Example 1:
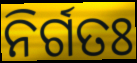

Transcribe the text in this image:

ନିର୍ଗତଃ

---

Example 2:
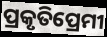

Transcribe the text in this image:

ପ୍ରକୃତିପ୍ରେମୀ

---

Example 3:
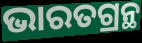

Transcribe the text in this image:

ଭାରତଗ୍ରନ୍ଥ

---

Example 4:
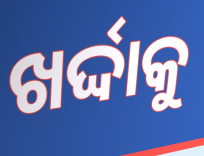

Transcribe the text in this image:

ଖର୍ଦ୍ଦାକୁ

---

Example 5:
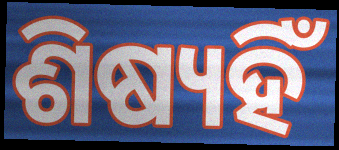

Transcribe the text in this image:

ଶିଷ୍ୟହିଁ